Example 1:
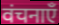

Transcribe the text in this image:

वंचनाएँ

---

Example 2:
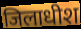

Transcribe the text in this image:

जिलाधीश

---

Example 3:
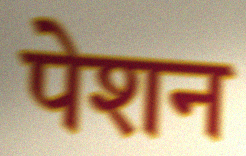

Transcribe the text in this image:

पेशन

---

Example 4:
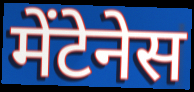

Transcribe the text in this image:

मेंटेनेस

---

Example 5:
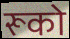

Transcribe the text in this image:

रूको